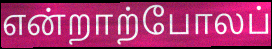
என்றாற்போலப்